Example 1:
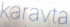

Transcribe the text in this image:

karavta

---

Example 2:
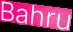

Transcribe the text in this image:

Bahru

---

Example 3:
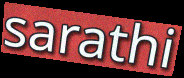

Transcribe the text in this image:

sarathi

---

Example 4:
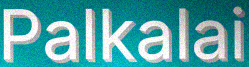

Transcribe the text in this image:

Palkalai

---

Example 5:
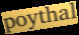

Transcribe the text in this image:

poythal